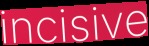
incisive